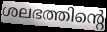
ശലഭത്തിന്റെ